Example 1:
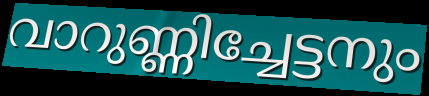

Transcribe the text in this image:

വാറുണ്ണിച്ചേട്ടനും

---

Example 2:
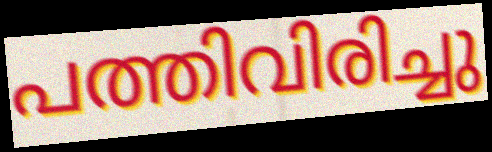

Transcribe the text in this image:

പത്തിവിരിച്ചു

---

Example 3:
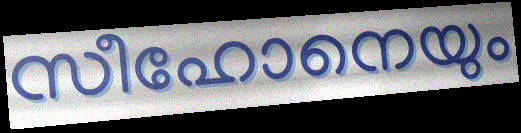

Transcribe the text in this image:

സീഹോനെയും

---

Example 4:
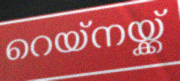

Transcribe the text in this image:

റെയ്നയ്ക്ക്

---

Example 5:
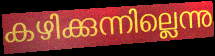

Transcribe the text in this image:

കഴിക്കുന്നില്ലെന്നു